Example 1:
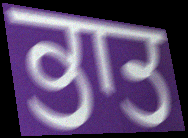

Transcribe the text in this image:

ਭਾਤ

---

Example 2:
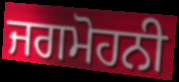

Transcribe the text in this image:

ਜਗਮੋਹਨੀ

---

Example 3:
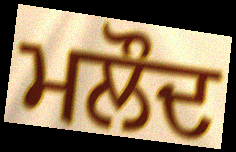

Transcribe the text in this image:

ਮਲੌਦ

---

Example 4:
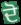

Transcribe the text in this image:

ਦੋ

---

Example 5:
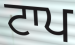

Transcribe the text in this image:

ਟਾਪ